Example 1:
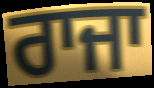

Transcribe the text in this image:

ਰਾਜਾ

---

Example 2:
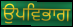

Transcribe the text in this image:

ਉਪਵਿਭਾਗ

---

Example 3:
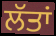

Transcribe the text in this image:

ਲੱਤਾਂ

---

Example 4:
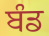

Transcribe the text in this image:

ਬੰਡ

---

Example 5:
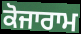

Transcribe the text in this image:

ਕੋਜਾਰਾਮ